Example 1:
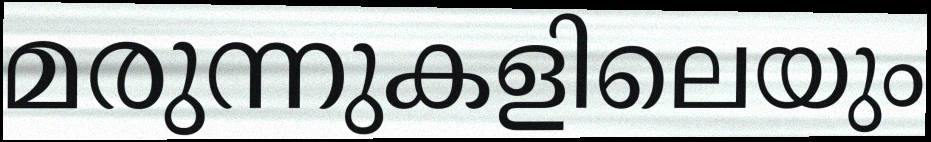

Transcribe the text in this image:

മരുന്നുകളിലെയും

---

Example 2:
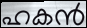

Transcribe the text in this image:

ഹകൻ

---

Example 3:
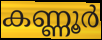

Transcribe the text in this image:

കണ്ണൂർ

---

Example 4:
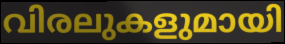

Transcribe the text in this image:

വിരലുകളുമായി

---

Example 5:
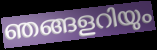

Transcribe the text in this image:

ഞങ്ങളറിയും